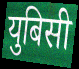
युबिसी